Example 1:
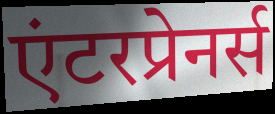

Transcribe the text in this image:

एंटरप्रेनर्स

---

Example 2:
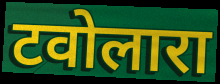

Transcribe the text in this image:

टवोलारा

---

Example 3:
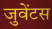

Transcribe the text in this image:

जुवेंटस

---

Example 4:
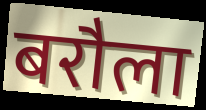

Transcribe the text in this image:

बरौला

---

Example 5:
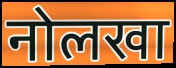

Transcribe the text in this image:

नोलखा